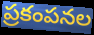
ప్రకంపనల